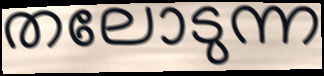
തലോടുന്ന